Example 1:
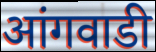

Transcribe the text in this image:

आंगवाडी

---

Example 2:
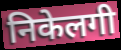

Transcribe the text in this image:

निकेलगी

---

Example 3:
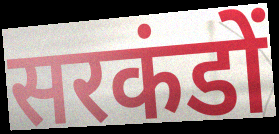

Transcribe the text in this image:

सरकंडों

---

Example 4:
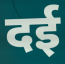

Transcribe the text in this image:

दई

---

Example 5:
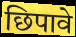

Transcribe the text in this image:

छिपावे